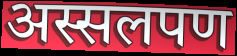
अस्सलपण